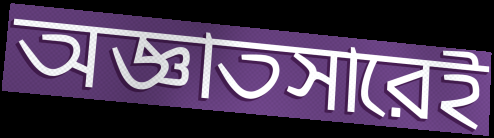
অজ্ঞাতসারেই